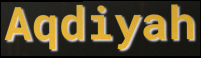
Aqdiyah